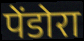
पेंडोरा